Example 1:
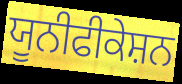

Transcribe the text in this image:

ਯੂਨੀਫੀਕੇਸ਼ਨ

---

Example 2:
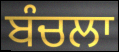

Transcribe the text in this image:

ਬੰਚਲਾ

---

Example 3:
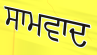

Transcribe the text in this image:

ਸਾਮਵਾਦ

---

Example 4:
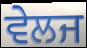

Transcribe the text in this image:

ਵੇਲਜ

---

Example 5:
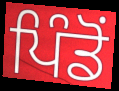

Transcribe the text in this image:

ਪਿੰਡੋਂ